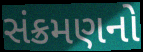
સંક્રમણનો